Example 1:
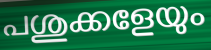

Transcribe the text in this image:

പശുക്കളേയും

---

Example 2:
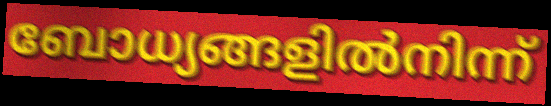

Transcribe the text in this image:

ബോധ്യങ്ങളിൽനിന്ന്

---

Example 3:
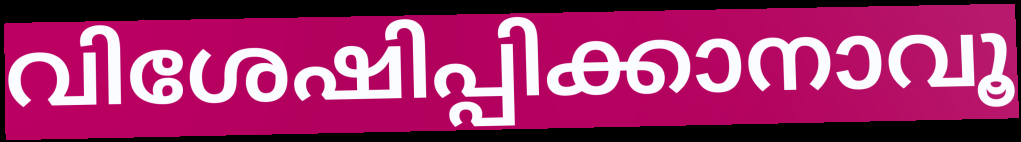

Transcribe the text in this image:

വിശേഷിപ്പിക്കാനാവൂ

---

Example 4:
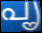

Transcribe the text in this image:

പൄ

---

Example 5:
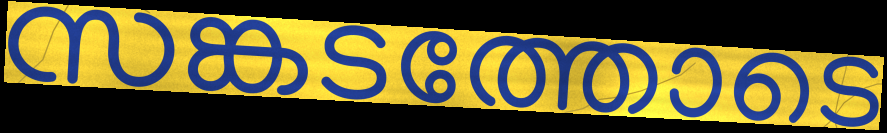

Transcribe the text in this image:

സങ്കടത്തോടെ